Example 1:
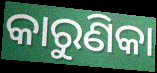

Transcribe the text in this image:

କାରୁଣିକା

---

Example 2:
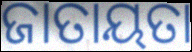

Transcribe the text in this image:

ଜାତାୟତା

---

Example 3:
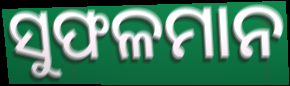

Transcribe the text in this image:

ସୁଫଳମାନ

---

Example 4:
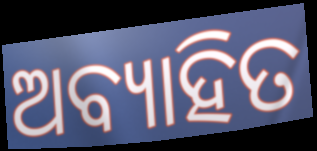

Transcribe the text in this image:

ଅବ୍ୟାହିତ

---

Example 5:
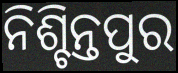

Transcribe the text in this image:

ନିଶ୍ଚିନ୍ତପୁର